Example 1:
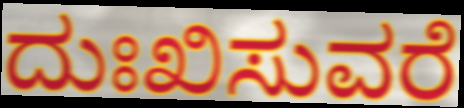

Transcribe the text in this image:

ದುಃಖಿಸುವರೆ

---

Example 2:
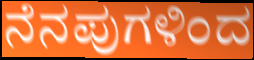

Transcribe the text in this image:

ನೆನಪುಗಳಿಂದ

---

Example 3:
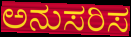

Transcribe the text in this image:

ಅನುಸರಿಸ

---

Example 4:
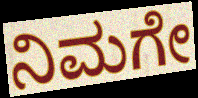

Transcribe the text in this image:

ನಿಮಗೇ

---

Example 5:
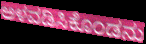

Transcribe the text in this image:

ಅಳವಡಿಸಿಕೊಂಡನು